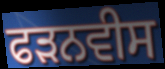
ਫੜਨਵੀਸ